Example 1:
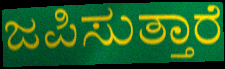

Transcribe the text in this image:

ಜಪಿಸುತ್ತಾರೆ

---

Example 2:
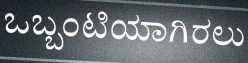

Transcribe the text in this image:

ಒಬ್ಬಂಟಿಯಾಗಿರಲು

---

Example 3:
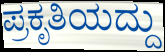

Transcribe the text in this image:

ಪ್ರಕೃತಿಯದ್ದು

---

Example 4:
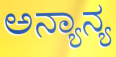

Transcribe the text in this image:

ಅನ್ಯಾನ್ಯ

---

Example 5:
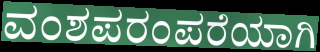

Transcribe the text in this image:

ವಂಶಪರಂಪರೆಯಾಗಿ